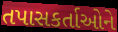
તપાસકર્તાઓને